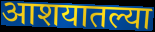
आशयातल्या